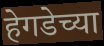
हेगडेच्या